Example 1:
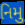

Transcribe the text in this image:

નિમુ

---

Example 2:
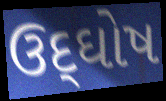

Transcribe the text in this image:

ઉદ્‌ઘોષ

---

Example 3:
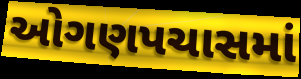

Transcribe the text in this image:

ઓગણપચાસમાં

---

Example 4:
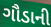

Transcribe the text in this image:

ગૌડાની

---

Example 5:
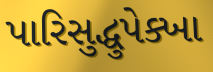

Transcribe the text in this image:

પારિસુદ્ધુપેક્ખા